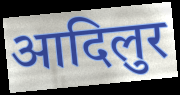
आदिलुर